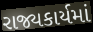
રાજ્યકાર્યમાં